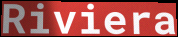
Riviera